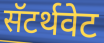
सॅटर्थवेट